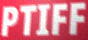
PTIFF